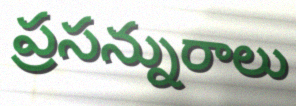
ప్రసన్నురాలు